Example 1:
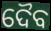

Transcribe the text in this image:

ଦୈବ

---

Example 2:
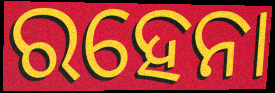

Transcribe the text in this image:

ରହେନା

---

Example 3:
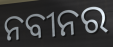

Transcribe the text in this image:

ନବୀନର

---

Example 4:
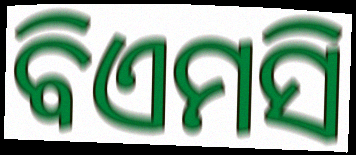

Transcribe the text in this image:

ବିଏମସି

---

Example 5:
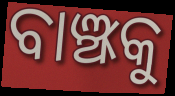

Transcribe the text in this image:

ବାଞ୍ଝକୁ